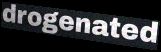
drogenated